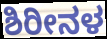
ಶಿರೀನಳ